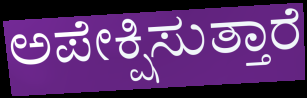
ಅಪೇಕ್ಷಿಸುತ್ತಾರೆ